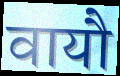
वायौ